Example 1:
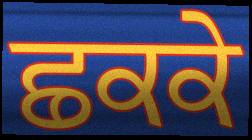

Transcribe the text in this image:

ਛਕਕੇ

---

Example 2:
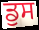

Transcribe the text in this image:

ਡੁਸ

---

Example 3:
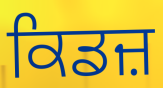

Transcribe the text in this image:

ਕਿਡਜ਼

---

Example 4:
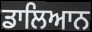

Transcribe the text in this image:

ਡਾਲਿਆਨ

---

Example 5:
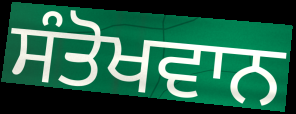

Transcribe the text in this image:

ਸੰਤੋਖਵਾਨ